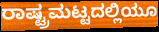
ರಾಷ್ಟ್ರಮಟ್ಟದಲ್ಲಿಯೂ